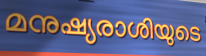
മനുഷ്യരാശിയുടെ